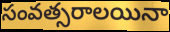
సంవత్సరాలయినా